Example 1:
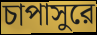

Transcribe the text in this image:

চাপাসুরে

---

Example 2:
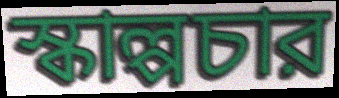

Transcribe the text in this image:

স্কাল্পচার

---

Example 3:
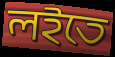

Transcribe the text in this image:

লইতে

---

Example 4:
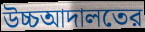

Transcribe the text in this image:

উচ্চআদালতের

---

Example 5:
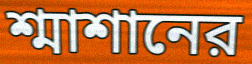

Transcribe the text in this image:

শ্মাশানের